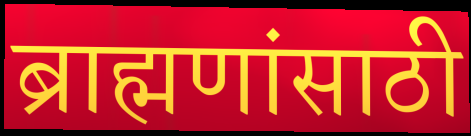
ब्राह्मणांसाठी